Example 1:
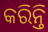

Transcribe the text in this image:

କରିନ୍ତି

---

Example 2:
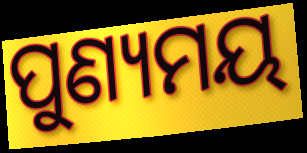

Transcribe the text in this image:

ପୁଣ୍ୟମୟ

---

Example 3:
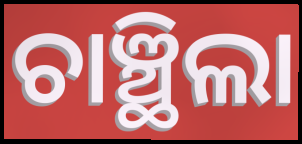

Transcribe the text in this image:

ଚାଞ୍ଛିଲା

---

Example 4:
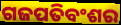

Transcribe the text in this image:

ଗଜପତିବଂଶର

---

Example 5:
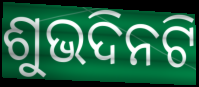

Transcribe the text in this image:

ଶୁଭଦିନଟି